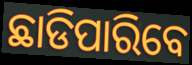
ଛାଡିପାରିବେ